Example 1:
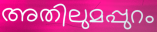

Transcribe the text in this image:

അതിലുമപ്പുറം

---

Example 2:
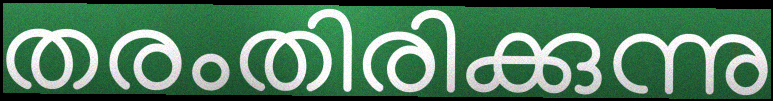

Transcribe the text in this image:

തരംതിരിക്കുന്നു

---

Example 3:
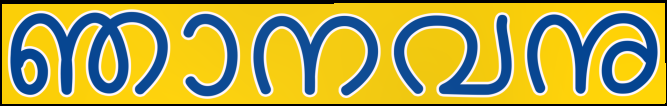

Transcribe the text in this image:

ഞാനവനു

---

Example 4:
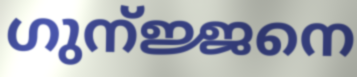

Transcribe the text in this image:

ഗുന്ജ്ജനെ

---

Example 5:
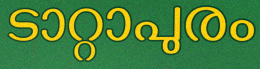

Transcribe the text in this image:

ടാറ്റാപുരം